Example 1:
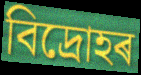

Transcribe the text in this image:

বিদ্ৰোহৰ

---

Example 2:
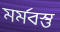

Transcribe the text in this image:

মৰ্মবস্তু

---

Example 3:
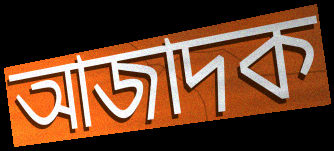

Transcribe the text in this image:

আজাদক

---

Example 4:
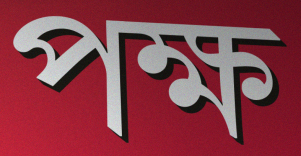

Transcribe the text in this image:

পক্ষ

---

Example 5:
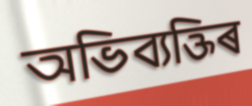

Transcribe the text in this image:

অভিব্যক্তিৰ